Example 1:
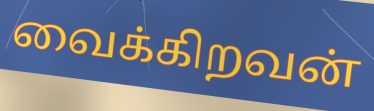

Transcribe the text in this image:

வைக்கிறவன்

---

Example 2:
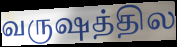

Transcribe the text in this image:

வருஷத்தில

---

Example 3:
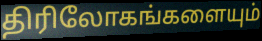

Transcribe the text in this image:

திரிலோகங்களையும்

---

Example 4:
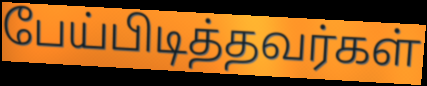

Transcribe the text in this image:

பேய்பிடித்தவர்கள்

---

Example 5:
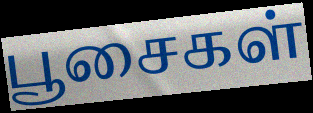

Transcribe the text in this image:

பூசைகள்